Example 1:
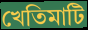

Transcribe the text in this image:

খেতিমাটি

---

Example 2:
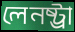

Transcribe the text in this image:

লেনষ্ট্ৰা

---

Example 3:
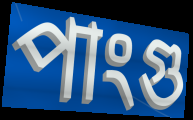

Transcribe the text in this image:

পাংগু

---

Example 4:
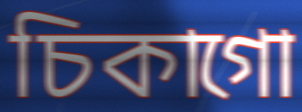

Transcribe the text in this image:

চিকাগো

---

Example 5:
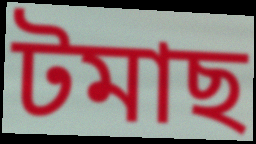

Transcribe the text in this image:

টমাছ